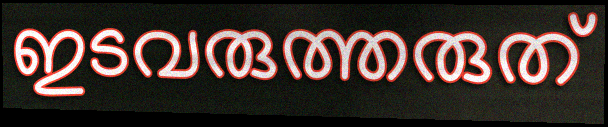
ഇടവരുത്തരുത്